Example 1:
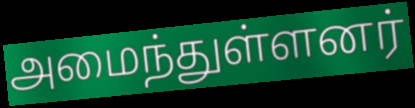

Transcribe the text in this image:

அமைந்துள்ளனர்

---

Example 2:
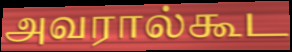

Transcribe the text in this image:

அவரால்கூட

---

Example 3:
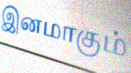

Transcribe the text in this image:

இனமாகும்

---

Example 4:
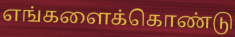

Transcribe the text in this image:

எங்களைக்கொண்டு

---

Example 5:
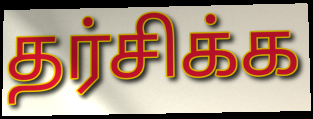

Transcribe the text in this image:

தர்சிக்க